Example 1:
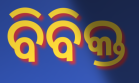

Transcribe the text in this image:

ବିବିକ୍ତ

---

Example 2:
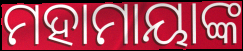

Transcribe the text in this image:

ମହାମାୟାଙ୍କ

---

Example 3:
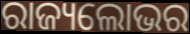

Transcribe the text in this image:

ରାଜ୍ୟଲୋଭର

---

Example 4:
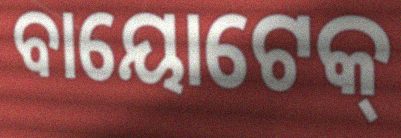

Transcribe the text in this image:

ବାୟୋଟେକ୍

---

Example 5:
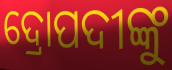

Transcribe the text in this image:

ଦ୍ରୋପଦୀଙ୍କୁ